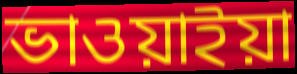
ভাওয়াইয়া